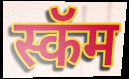
स्कॅम